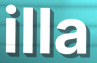
illa